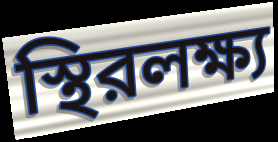
স্থিরলক্ষ্য